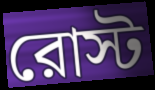
রোস্ট